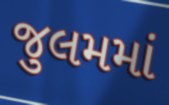
જુલમમાં